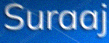
Suraaj